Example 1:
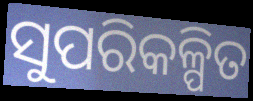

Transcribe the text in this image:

ସୁପରିକଳ୍ପିତ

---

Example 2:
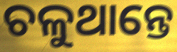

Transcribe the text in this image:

ଚଳୁଥାନ୍ତେ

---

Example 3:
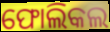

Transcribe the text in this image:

ଫୋଲିକଲ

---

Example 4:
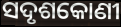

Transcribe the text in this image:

ସଦୃଶକୋଣୀ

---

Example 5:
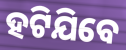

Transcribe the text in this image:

ହଟିଯିବେ